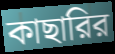
কাছারির